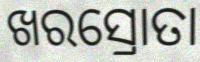
ଖରସ୍ରୋତା